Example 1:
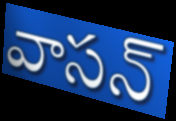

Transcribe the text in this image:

వాసన్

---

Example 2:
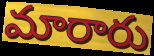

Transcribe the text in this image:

మారారు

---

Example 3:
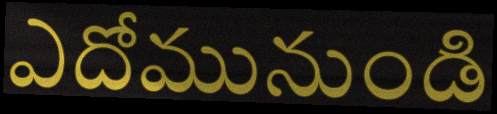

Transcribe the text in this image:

ఎదోమునుండి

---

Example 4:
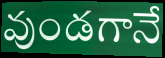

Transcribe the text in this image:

వుండగానే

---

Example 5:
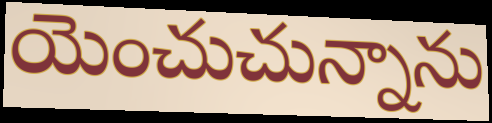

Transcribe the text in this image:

యెంచుచున్నాను